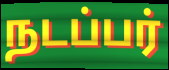
நடப்பர்